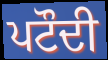
ਪਟੌਦੀ